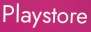
Playstore